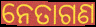
ନେତାଗଣ